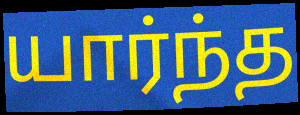
யார்ந்த